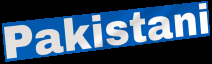
Pakistani